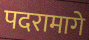
पदरामागे